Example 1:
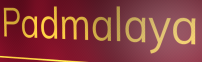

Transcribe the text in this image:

Padmalaya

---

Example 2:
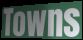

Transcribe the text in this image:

Towns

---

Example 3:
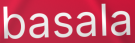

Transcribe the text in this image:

basala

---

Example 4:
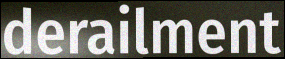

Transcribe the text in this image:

derailment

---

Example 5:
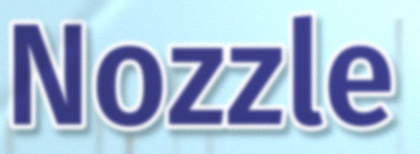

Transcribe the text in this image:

Nozzle